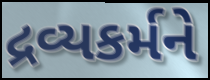
દ્રવ્યકર્મને